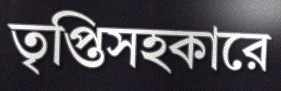
তৃপ্তিসহকারে